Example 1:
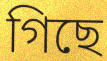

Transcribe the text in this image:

গিছে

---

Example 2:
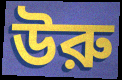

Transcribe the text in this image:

উরু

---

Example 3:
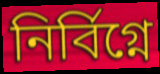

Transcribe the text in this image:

নির্বিগ্নে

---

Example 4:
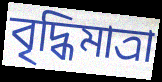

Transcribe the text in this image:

বৃদ্ধিমাত্রা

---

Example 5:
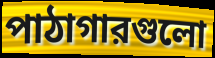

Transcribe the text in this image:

পাঠাগারগুলো